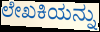
ಲೇಖಕಿಯನ್ನು